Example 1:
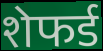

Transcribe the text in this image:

शेफर्ड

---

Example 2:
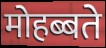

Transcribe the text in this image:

मोहब्बते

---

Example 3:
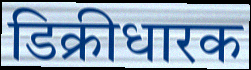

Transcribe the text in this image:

डिक्रीधारक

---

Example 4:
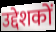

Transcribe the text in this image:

उद्देशकों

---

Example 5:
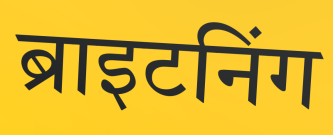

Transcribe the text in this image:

ब्राइटनिंग